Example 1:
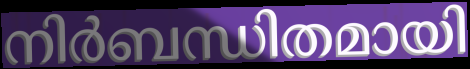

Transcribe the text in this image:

നിർബന്ധിതമായി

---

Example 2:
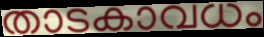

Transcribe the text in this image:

താടകാവധം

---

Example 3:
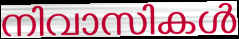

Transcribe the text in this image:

നിവാസികൾ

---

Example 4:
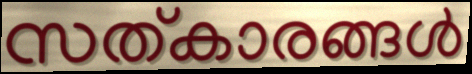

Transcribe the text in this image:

സത്കാരങ്ങൾ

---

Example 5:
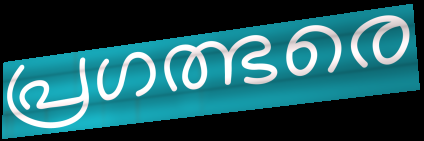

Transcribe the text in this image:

പ്രഗത്ഭരെ